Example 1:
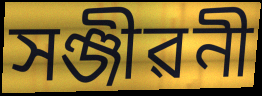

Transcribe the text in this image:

সঞ্জীৱনী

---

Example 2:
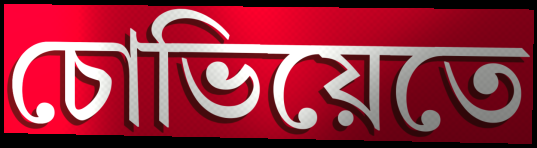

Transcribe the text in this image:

চোভিয়েতে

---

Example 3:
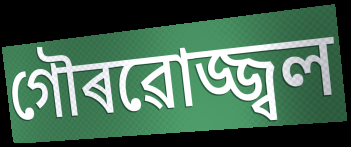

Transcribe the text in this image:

গৌৰৱোজ্জ্বল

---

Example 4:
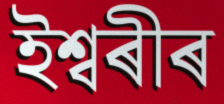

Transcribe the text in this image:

ইশ্বৰীৰ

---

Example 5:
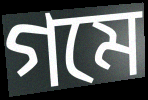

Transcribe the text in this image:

গমে